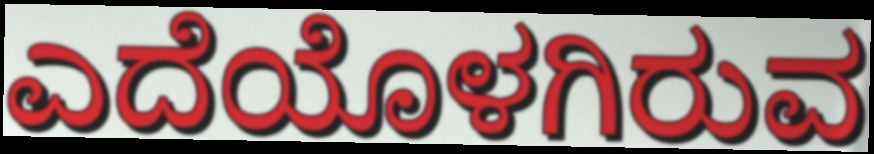
ಎದೆಯೊಳಗಿರುವ